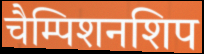
चैम्पिशनशिप